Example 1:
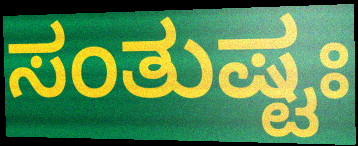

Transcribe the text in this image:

ಸಂತುಷ್ಟಃ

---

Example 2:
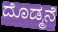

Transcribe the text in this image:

ದೊಡ್ಮನೆ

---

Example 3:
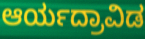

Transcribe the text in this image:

ಆರ್ಯದ್ರಾವಿಡ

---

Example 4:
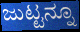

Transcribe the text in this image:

ಜುಟ್ಟನ್ನೂ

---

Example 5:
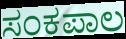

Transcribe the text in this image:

ಸಂಕಪಾಲ